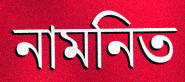
নামনিত